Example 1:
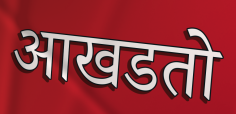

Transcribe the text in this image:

आखडतो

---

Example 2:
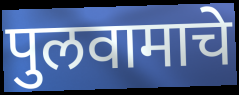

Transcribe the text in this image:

पुलवामाचे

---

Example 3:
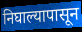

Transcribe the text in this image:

निघाल्यापासून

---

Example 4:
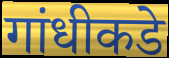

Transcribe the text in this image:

गांधीकडे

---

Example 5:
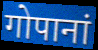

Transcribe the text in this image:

गोपानां